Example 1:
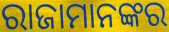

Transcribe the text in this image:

ରାଜାମାନଙ୍କର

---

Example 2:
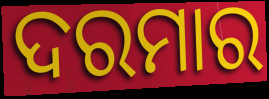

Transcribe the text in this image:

ଦରମାର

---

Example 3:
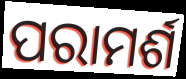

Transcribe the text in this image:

ପରାମର୍ଶ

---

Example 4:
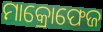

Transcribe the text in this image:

ମାକ୍ରୋଫେଜ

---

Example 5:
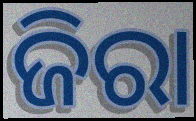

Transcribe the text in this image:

ଜିରା